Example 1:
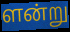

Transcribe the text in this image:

ளன்று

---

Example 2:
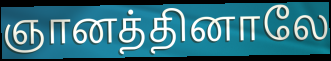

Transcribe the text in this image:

ஞானத்தினாலே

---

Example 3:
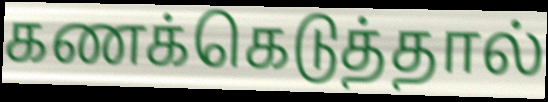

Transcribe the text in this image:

கணக்கெடுத்தால்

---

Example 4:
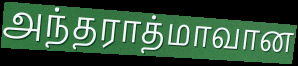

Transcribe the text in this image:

அந்தராத்மாவான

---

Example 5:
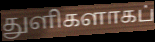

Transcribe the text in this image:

துளிகளாகப்